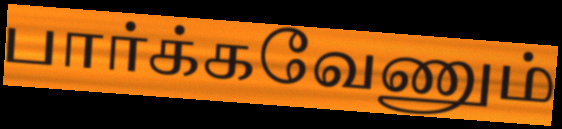
பார்க்கவேணும்